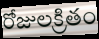
రోజులక్రితం